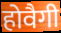
होवैगी